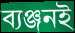
ব্যঞ্জনই